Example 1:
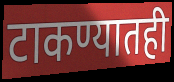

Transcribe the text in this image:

टाकण्यातही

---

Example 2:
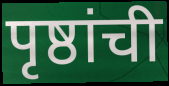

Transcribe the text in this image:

पृष्ठांची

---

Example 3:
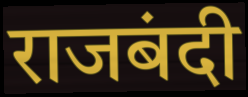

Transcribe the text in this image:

राजबंदी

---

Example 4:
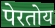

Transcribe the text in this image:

पेरतोय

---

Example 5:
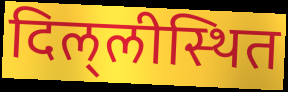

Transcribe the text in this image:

दिल्लीस्थित